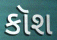
કૉશ